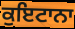
ਕੁਇਟਾਨਾ